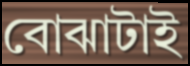
বোঝাটাই